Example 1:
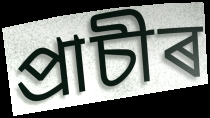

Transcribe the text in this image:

প্ৰাচীৰ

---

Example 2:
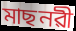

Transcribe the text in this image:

মাছনৱী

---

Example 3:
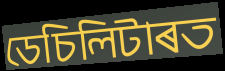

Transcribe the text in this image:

ডেচিলিটাৰত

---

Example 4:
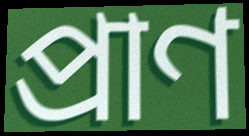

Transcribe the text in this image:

প্ৰাণ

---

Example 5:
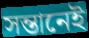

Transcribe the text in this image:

সন্তানেই